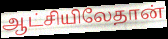
ஆட்சியிலேதான்